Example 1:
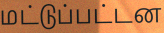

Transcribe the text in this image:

மட்டுப்பட்டன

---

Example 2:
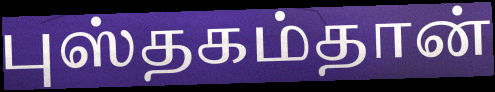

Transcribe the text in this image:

புஸ்தகம்தான்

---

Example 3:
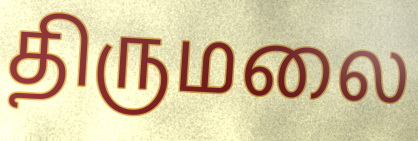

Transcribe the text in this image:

திருமலை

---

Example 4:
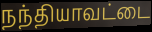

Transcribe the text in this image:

நந்தியாவட்டை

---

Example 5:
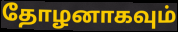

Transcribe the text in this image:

தோழனாகவும்